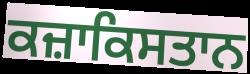
ਕਜ਼ਾਕਿਸਤਾਨ